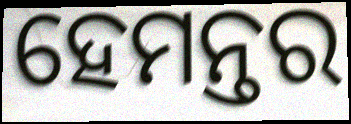
ହେମନ୍ତର